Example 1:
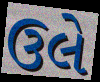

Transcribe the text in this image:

ઉલે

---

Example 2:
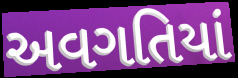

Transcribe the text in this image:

અવગતિયાં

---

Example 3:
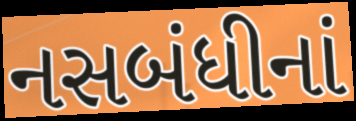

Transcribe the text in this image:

નસબંધીનાં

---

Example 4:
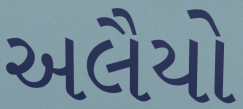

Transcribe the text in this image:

અલૈયો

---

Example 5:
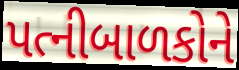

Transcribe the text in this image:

પત્નીબાળકોને